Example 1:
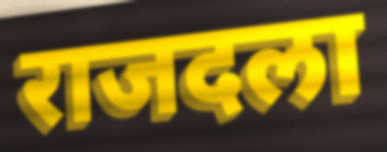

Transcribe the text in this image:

राजदला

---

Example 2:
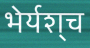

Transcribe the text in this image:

भेर्यश्च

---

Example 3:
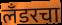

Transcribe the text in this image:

लँडरचा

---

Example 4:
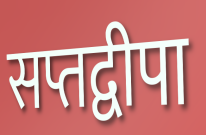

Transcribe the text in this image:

सप्तद्वीपा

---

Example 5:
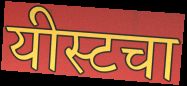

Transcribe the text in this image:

यीस्टचा